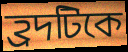
হ্রদটিকে